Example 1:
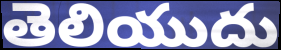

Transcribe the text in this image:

తెలియుదు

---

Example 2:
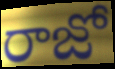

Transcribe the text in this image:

రాజో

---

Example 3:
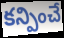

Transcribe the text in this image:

కన్పించే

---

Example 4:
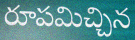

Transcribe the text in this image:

రూపమిచ్చిన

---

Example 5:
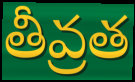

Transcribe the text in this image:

తీవ్రత